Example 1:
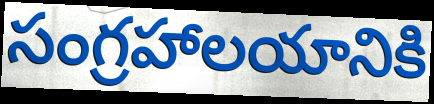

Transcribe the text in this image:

సంగ్రహాలయానికి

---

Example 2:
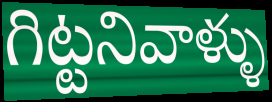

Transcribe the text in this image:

గిట్టనివాళ్ళు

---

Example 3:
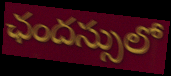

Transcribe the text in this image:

ఛందస్సులో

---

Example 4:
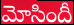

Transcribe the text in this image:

మోసిందీ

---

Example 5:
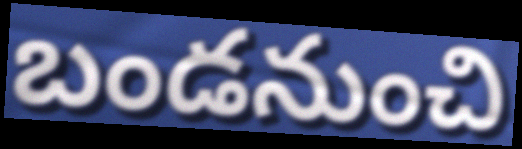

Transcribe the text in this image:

బండనుంచి